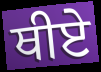
ਥੀਏ